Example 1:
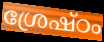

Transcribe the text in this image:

ശ്രേഷ്ഠം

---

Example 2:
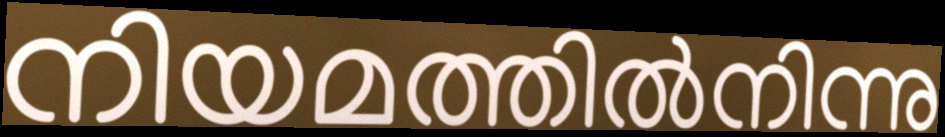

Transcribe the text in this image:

നിയമത്തിൽനിന്നു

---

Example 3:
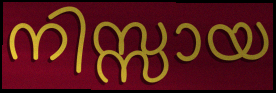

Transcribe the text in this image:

നിസ്സായ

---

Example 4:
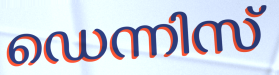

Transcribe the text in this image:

ഡെന്നിസ്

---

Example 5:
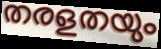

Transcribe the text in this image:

തരളതയും